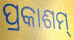
ପ୍ରକାଶମ୍